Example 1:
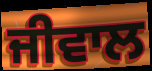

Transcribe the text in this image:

ਜੀਵਾਲ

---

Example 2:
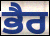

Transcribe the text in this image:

ਭੈਰ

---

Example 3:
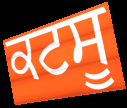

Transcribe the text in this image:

ਕਟਸੂ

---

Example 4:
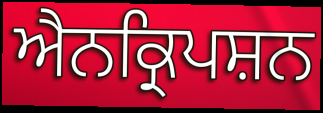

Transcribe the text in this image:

ਐਨਕ੍ਰਿਪਸ਼ਨ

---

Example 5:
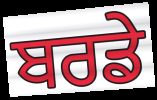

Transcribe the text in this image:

ਬਰਡੇ